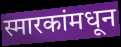
स्मारकांमधून